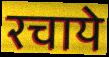
रचाये